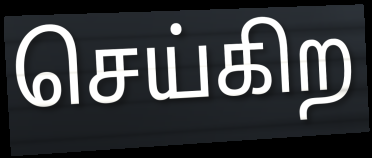
செய்கிற